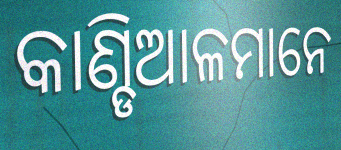
କାଣ୍ଡିଆଳମାନେ